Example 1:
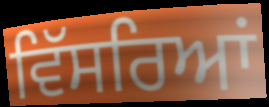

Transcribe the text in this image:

ਵਿੱਸਰਿਆਂ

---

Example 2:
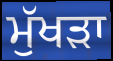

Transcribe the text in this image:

ਮੁੱਖੜਾ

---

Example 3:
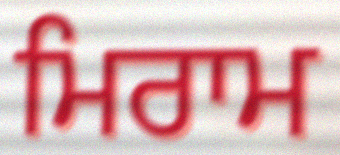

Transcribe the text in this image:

ਮਿਰਾਮ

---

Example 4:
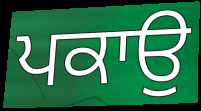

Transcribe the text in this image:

ਪਕਾਉ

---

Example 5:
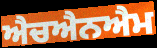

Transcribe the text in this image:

ਐਚਐਨਐਮ